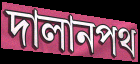
দালানপথ